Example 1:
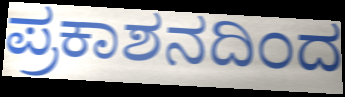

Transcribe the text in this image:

ಪ್ರಕಾಶನದಿಂದ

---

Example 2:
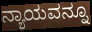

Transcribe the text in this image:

ನ್ಯಾಯವನ್ನೂ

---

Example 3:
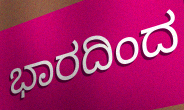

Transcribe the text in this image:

ಭಾರದಿಂದ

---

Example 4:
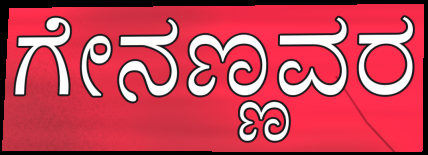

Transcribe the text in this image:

ಗೇನಣ್ಣವರ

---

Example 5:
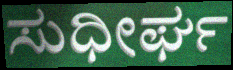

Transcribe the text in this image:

ಸುಧೀರ್ಘ